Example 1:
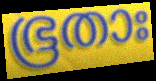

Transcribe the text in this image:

ഭൂതാഃ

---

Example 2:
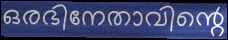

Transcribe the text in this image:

ഒരഭിനേതാവിന്റെ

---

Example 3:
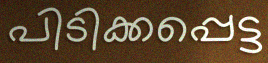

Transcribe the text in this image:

പിടിക്കപ്പെട്ട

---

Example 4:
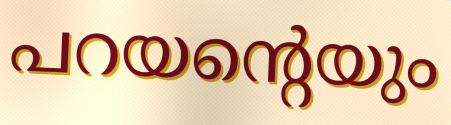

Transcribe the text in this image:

പറയന്റെയും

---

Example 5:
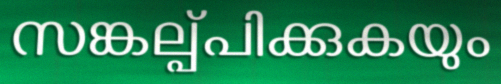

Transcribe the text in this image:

സങ്കല്പ്പിക്കുകയും